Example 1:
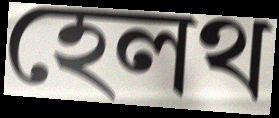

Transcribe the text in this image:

হেলথ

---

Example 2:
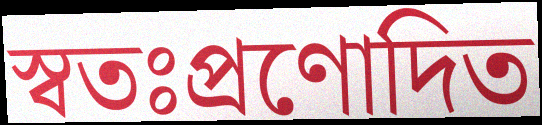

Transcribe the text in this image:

স্বতঃপ্রণোদিত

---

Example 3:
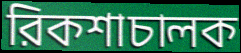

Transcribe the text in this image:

রিকশাচালক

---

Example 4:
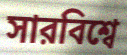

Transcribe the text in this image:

সারবিশ্বে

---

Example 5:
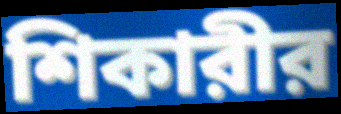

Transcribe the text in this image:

শিকারীর